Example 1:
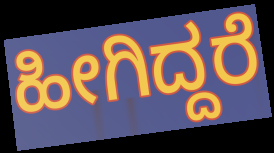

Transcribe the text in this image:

ಹೀಗಿದ್ದರೆ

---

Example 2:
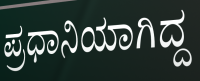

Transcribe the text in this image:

ಪ್ರಧಾನಿಯಾಗಿದ್ದ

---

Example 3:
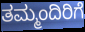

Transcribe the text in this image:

ತಮ್ಮಂದಿರಿಗೆ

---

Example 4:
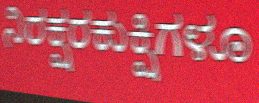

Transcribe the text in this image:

ನಿರಕ್ಷರಕುಕ್ಷಿಗಳೂ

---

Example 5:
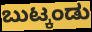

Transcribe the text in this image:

ಬುಟ್ಕಂಡು